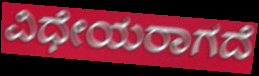
ವಿಧೇಯರಾಗದೆ